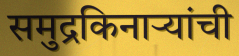
समुद्रकिनाऱ्यांची